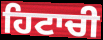
ਹਿਟਾਚੀ